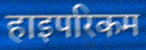
हाइपरिकम